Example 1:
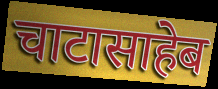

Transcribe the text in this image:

चाटासाहेब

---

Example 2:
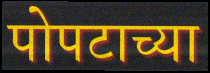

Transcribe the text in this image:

पोपटाच्या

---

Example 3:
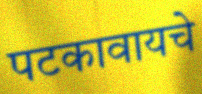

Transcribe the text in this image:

पटकावायचे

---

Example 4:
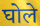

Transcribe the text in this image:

घोले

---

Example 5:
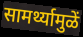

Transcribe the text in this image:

सामर्थ्यामुळें